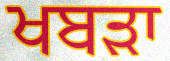
ਖਬੜਾ